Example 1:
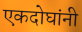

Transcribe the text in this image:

एकदोघांनी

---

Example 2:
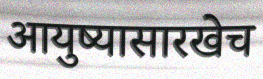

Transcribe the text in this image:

आयुष्यासारखेच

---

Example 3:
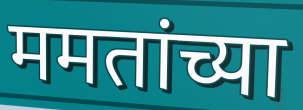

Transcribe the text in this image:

ममतांच्या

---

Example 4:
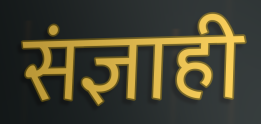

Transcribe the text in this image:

संज्ञाही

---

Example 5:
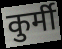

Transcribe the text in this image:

कुर्मी